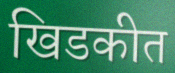
खिडकीत